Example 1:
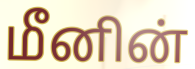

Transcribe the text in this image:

மீனின்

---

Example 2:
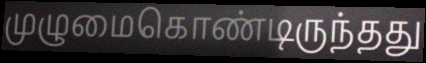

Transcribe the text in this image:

முழுமைகொண்டிருந்தது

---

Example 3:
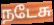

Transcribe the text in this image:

நடேசு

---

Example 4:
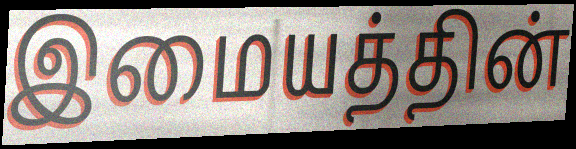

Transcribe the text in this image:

இமையத்தின்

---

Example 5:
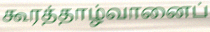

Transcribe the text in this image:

கூரத்தாழ்வானைப்